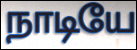
நாடியே